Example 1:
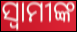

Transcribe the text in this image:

ସ୍ୱାମୀଙ୍କ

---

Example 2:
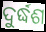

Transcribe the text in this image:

ଦୁର୍ଦ୍ଧଶ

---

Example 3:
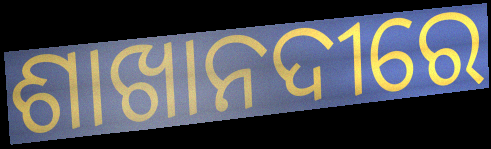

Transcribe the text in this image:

ଶାଖାନଦୀରେ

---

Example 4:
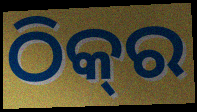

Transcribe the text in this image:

ଠିକ୍‍ର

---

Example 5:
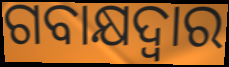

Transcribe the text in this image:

ଗବାକ୍ଷଦ୍ୱାର